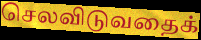
செலவிடுவதைக்